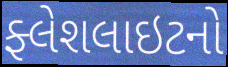
ફ્લેશલાઇટનો